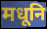
मधूनि